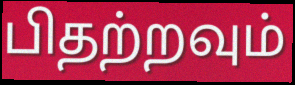
பிதற்றவும்